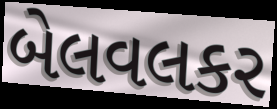
બેલવલકર